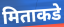
मिताकडे